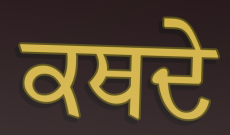
ਕਥਦੇ